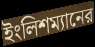
ইংলিশম্যানের